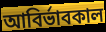
আবির্ভাবকাল